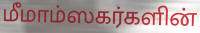
மீமாம்ஸகர்களின்